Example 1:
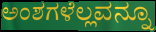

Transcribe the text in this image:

ಅಂಶಗಳೆಲ್ಲವನ್ನೂ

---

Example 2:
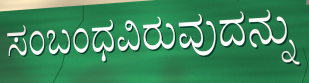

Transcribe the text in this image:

ಸಂಬಂಧವಿರುವುದನ್ನು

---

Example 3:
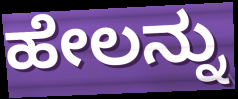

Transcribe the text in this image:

ಹೇಲನ್ನು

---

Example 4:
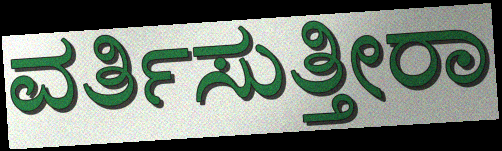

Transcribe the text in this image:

ವರ್ತಿಸುತ್ತೀರಾ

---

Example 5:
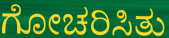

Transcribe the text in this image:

ಗೋಚರಿಸಿತು